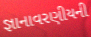
જ્ઞાનાવરણીયની